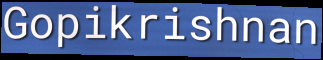
Gopikrishnan